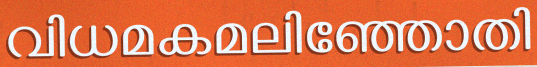
വിധമകമലിഞ്ഞോതി